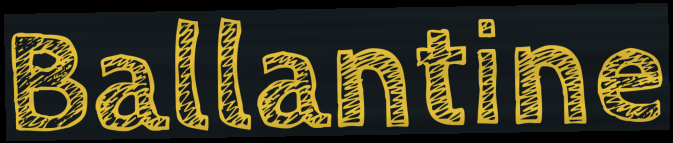
Ballantine